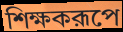
শিক্ষকরূপে